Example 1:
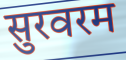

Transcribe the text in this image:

सुरवरम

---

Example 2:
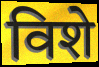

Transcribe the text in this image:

विशे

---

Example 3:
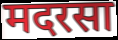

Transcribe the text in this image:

मदरसा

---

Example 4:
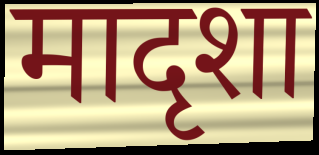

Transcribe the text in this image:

मादृशा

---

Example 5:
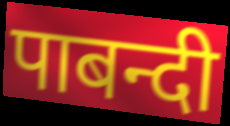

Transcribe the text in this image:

पाबन्दी